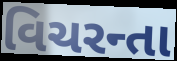
વિચરન્તા